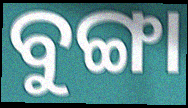
ବୁଙ୍ଗା